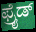
ಫ್ರೈಡ್